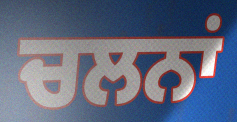
ਚਲਨਾਂ